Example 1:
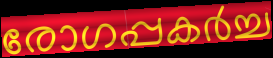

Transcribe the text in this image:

രോഗപ്പകർച്ച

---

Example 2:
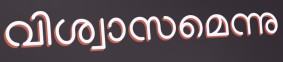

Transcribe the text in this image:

വിശ്വാസമെന്നു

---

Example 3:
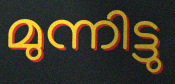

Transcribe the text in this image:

മുന്നിട്ടു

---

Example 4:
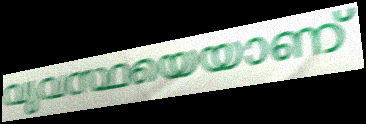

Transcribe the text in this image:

വ്യവസ്ഥയെയാണ്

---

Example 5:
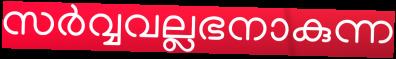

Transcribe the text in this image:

സർവ്വവല്ലഭനാകുന്ന